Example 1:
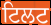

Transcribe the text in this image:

ਟਿਲਟ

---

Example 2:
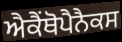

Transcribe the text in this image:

ਐਕੈਂਥੋਪੈਨੈਕਸ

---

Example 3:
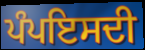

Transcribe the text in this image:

ਪੰਪਇਸਦੀ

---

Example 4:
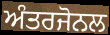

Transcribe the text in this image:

ਅੰਤਰਜੋਨਲ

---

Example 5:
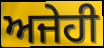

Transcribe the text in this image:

ਅਜੇਹੀ